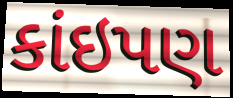
કાંઇપણ